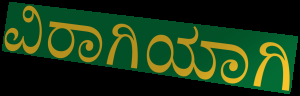
ವಿರಾಗಿಯಾಗಿ